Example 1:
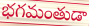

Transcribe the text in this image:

భగమంతుడా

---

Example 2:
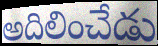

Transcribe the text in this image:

అదిలించేడు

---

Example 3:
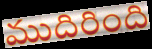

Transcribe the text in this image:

ముదిరింది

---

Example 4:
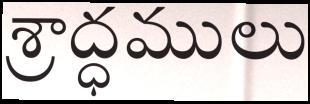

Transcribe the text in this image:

శ్రాద్ధములు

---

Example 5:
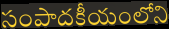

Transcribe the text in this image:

సంపాదకీయంలోని